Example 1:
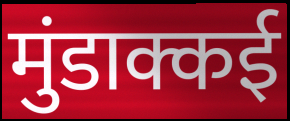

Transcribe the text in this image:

मुंडाक्कई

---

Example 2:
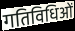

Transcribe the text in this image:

गतिविधिओं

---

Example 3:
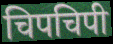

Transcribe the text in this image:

चिपचिपी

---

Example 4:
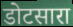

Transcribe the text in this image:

डोटसारा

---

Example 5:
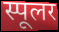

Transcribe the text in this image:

स्पूलर